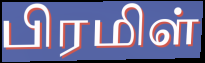
பிரமிள்